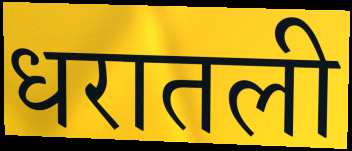
धरातली